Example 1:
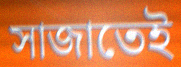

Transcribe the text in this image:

সাজাতেই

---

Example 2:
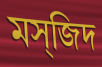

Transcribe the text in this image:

মস্জিদ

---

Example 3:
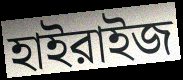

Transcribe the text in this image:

হাইরাইজ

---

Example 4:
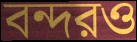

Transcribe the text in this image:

বন্দরও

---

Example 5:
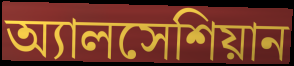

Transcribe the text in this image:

অ্যালসেশিয়ান